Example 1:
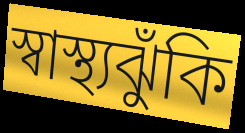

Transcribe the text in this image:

স্বাস্থ্যঝুঁকি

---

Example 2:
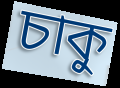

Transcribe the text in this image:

চাকু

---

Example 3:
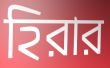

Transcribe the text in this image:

হিরার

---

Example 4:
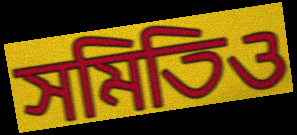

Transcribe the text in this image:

সমিতিও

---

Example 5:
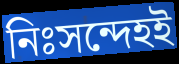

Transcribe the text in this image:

নিঃসন্দেহই